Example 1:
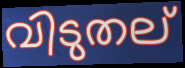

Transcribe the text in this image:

വിടുതല്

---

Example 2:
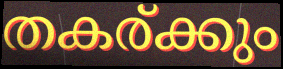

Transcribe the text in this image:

തകര്ക്കും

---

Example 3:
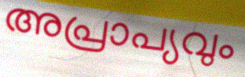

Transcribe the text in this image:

അപ്രാപ്യവും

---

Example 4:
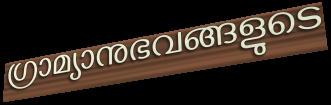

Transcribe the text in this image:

ഗ്രാമ്യാനുഭവങ്ങളുടെ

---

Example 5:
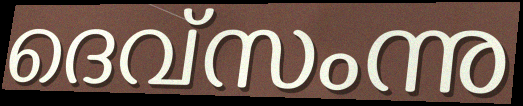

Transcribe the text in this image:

ദെവ്സംന്നു